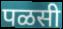
पळसी